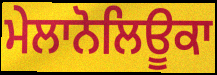
ਮੇਲਾਨੋਲਿਊਕਾ